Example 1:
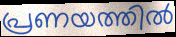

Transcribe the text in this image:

പ്രണയത്തിൽ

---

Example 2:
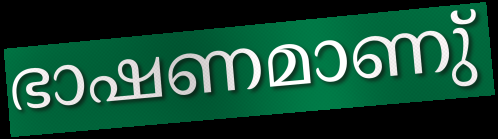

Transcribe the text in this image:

ഭാഷണമാണു്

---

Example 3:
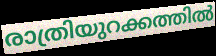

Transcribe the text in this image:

രാത്രിയുറക്കത്തിൽ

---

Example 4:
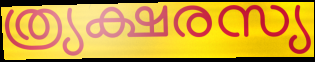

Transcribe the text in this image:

ത്ര്യക്ഷരസ്യ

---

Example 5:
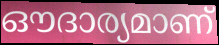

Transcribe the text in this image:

ഔദാര്യമാണ്